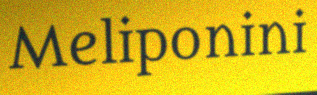
Meliponini